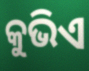
କୁଭିଏ